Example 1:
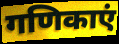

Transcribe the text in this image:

गणिकाएं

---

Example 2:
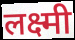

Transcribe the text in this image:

लक्ष्मी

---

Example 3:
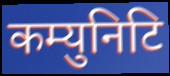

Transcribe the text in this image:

कम्युनिटि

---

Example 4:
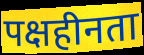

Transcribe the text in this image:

पक्षहीनता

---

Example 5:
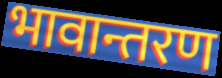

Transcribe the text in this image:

भावान्तरण